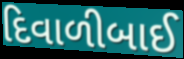
દિવાળીબાઈ